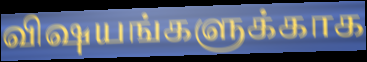
விஷயங்களுக்காக